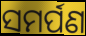
ସମର୍ପଣ